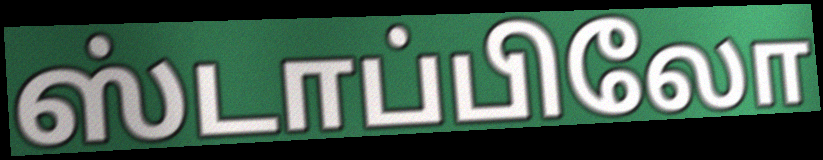
ஸ்டாப்பிலோ